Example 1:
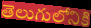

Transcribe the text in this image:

తెలుగులోనికి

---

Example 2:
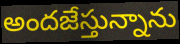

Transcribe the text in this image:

అందజేస్తున్నాను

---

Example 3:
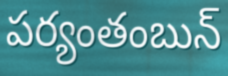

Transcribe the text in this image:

పర్యంతంబున్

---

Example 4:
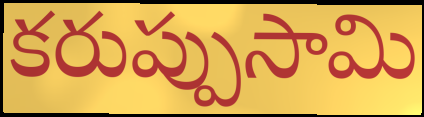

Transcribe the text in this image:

కరుప్పుసామి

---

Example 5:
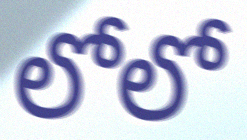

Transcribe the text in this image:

లోలో